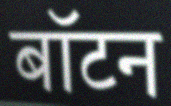
बॉटन